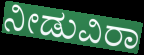
ನೀಡುವಿರಾ